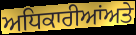
ਅਧਿਕਾਰੀਆਂਅਤੇ